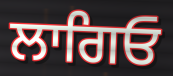
ਲਾਗਿਓ